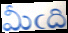
మీఁది